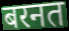
बरनत